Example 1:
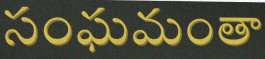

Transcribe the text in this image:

సంఘమంతా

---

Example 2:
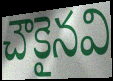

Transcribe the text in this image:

చౌకైనవి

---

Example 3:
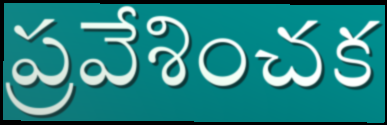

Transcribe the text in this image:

ప్రవేశించక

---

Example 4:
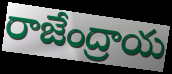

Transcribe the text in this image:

రాజేంద్రాయ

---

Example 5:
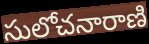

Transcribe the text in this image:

సులోచనారాణి